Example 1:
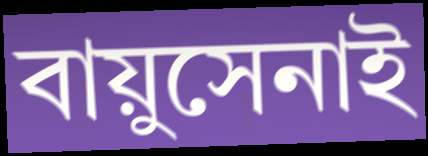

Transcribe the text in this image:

বায়ুসেনাই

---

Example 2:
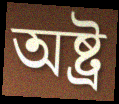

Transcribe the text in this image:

অষ্ট্ৰ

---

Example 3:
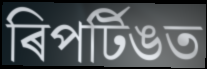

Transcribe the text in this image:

ৰিপৰ্টিঙত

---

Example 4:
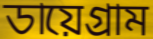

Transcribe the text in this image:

ডায়েগ্ৰাম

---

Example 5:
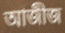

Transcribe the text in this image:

আজীজ